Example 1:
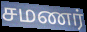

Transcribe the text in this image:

சமணர்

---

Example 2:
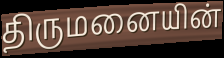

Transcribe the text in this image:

திருமனையின்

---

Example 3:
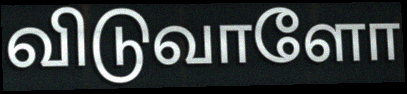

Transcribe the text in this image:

விடுவாளோ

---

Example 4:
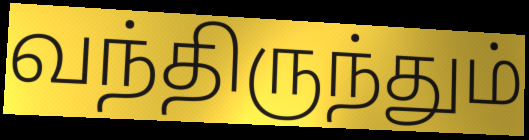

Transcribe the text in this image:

வந்திருந்தும்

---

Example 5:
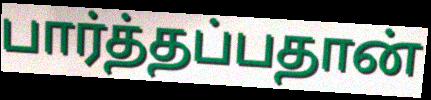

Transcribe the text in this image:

பார்த்தப்பதான்